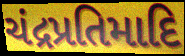
ચંદ્રપ્રતિમાદિ